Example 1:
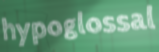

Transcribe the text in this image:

hypoglossal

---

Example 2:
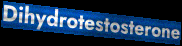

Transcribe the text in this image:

Dihydrotestosterone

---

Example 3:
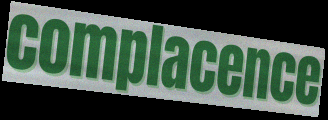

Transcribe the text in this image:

complacence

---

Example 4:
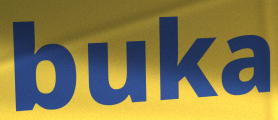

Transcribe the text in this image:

buka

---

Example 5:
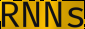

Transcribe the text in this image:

RNNs